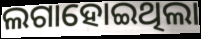
ଲଗାହୋଇଥିଲା